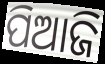
ପିଆଜି